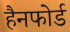
हैनफोर्ड